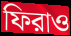
ফিরাও